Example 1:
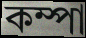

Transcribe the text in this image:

কম্পা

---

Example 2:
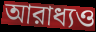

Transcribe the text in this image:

আরাধ্যও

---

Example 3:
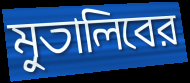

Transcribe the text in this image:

মুতালিবের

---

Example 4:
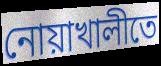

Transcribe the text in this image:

নোয়াখালীতে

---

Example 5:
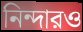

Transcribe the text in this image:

নিন্দারও